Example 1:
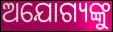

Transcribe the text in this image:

ଅଯୋଗ୍ୟଙ୍କୁ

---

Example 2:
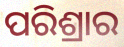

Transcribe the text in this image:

ପରିଶ୍ରାର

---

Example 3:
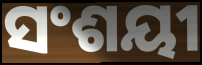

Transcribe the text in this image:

ସଂଶୟୀ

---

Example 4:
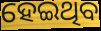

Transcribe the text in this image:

ହେଇଥିବ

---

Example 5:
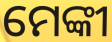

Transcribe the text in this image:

ମେଙ୍କୀ